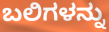
ಬಲಿಗಳನ್ನು